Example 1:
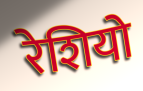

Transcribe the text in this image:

रेशियो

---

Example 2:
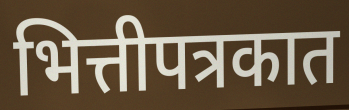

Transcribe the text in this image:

भित्तीपत्रकात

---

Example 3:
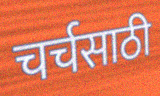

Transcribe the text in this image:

चर्चसाठी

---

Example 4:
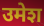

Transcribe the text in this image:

उमेश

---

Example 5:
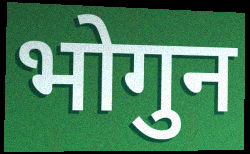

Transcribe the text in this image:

भोगुन